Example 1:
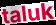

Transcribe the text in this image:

taluk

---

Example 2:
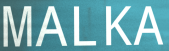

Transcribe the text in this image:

MALKA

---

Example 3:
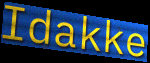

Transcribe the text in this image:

Idakke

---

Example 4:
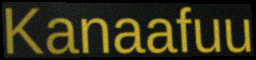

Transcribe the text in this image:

Kanaafuu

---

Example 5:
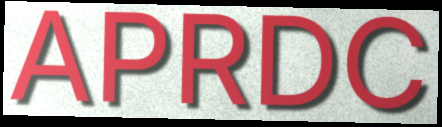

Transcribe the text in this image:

APRDC